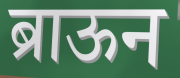
ब्राऊन